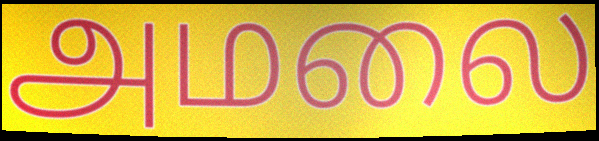
அமலை